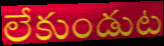
లేకుండుట